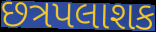
છત્રપલાશક